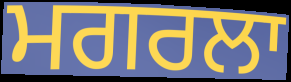
ਮਗਰਲਾ